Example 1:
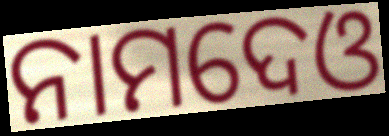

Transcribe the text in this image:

ନାମଦେଓ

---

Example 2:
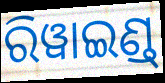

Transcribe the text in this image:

ରିୱାଇଣ୍ଡ୍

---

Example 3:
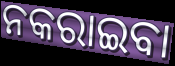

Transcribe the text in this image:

ନକରାଇବା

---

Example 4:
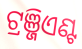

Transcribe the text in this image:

ଟ୍ରଞ୍ଜିଏଣ୍ଟ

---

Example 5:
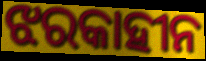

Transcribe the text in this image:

ଝରକାହୀନ